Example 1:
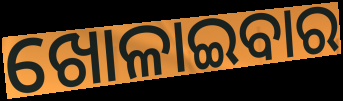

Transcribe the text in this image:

ଖୋଳାଇବାର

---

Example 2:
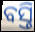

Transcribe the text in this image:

ବସ୍ତି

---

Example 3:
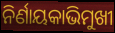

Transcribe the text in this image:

ନିର୍ଣାୟକାଭିମୁଖୀ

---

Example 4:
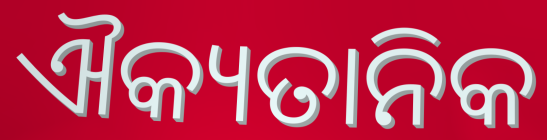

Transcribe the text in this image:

ଐକ୍ୟତାନିକ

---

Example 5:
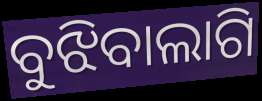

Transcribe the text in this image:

ବୁଝିବାଲାଗି